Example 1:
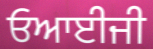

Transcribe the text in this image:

ਓਆਈਜੀ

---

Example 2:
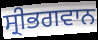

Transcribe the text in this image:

ਸ੍ਰੀਭਗਵਾਨ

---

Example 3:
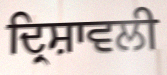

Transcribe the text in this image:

ਦ੍ਰਿਸ਼ਾਵਲੀ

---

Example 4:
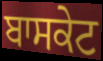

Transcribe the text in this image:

ਬਾਸਕੇਟ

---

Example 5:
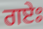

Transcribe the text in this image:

ਗਏਃ